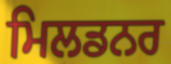
ਮਿਲਡਨਰ